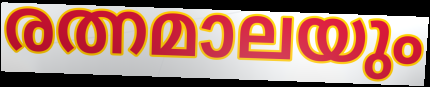
രത്നമാലയും